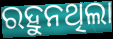
ରହୁନଥିଲା